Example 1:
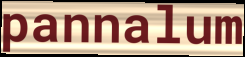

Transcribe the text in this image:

pannalum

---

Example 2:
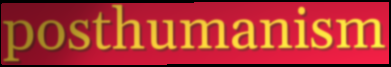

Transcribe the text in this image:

posthumanism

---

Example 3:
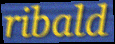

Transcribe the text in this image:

ribald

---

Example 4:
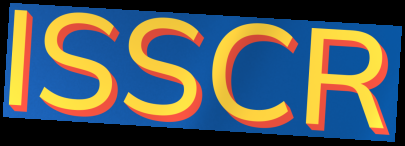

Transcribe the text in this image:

ISSCR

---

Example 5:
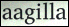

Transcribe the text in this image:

aagilla